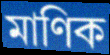
মাণিক